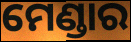
ମେଣ୍ଡାର